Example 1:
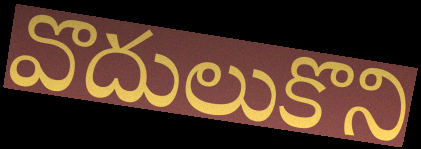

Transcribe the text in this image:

వొదులుకొని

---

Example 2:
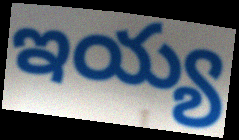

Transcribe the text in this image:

ఇయ్య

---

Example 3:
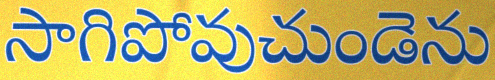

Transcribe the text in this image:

సాగిపోవుచుండెను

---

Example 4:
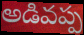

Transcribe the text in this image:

అడివప్ప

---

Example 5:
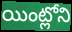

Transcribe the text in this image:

యింట్లోని